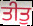
ਤੀਤੁ